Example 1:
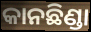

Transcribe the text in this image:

କାନଛିଣ୍ଡା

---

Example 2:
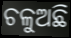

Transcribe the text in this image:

ଚଳୁଅଛି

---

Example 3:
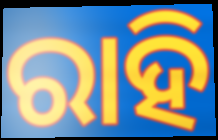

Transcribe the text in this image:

ରାହି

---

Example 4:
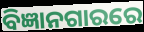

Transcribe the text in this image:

ବିଜ୍ଞାନଗାରରେ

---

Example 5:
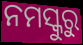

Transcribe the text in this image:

ନମସ୍କୁରୁ